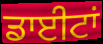
ਡਾਈਟਾਂ